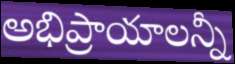
అభిప్రాయాలన్నీ